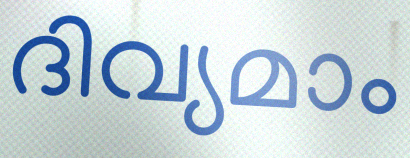
ദിവ്യമാം